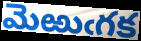
మెఱుఁగక